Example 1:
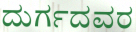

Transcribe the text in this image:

ದುರ್ಗದವರ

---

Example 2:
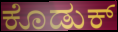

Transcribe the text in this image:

ಕೊಡುಕ್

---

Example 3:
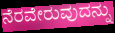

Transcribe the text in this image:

ನೆರವೇರುವುದನ್ನು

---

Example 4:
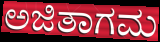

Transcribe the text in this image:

ಅಜಿತಾಗಮ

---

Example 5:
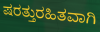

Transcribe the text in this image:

ಷರತ್ತುರಹಿತವಾಗಿ